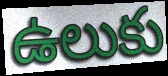
ఉలుకు